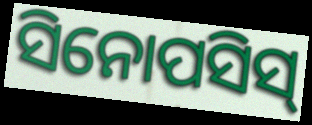
ସିନୋପସିସ୍